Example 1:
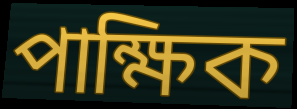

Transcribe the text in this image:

পাক্ষিক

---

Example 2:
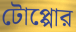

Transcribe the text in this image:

টোপ্পোর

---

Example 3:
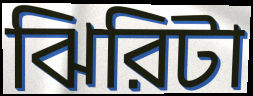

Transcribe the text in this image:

ঝিরিটা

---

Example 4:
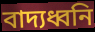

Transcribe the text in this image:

বাদ্যধ্বনি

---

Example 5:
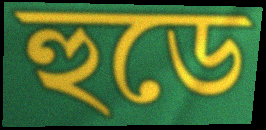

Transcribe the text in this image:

হুডে